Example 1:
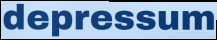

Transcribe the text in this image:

depressum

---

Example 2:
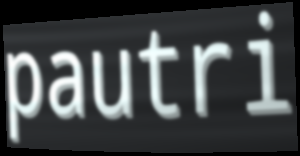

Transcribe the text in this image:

pautri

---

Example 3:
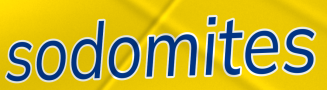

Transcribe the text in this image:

sodomites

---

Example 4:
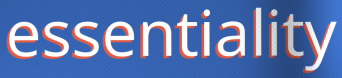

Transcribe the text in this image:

essentiality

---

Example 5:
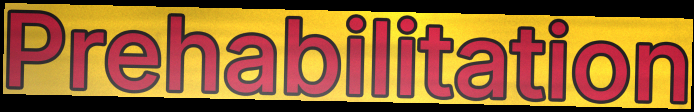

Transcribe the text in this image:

Prehabilitation